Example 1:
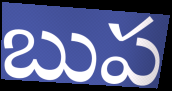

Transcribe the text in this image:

బుప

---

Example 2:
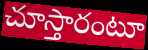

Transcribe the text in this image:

చూస్తారంటూ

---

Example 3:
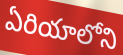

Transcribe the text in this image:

ఏరియాలోని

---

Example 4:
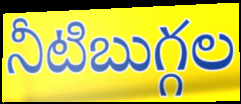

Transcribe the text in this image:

నీటిబుగ్గల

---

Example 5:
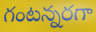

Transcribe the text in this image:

గంటన్నరగా